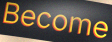
Become